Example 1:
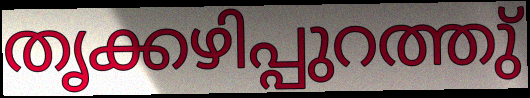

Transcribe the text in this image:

തൃക്കഴിപ്പുറത്തു്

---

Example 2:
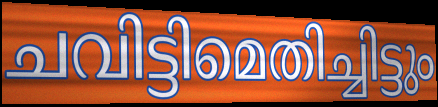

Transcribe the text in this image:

ചവിട്ടിമെതിച്ചിട്ടും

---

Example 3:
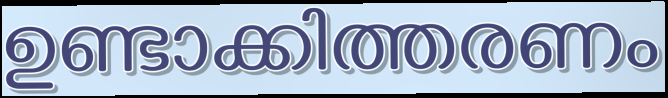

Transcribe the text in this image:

ഉണ്ടാക്കിത്തരണം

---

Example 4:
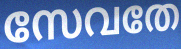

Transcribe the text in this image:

സേവതേ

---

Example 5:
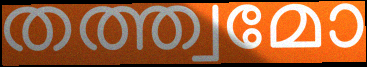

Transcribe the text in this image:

തത്ത്വമോ